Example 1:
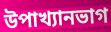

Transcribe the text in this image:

উপাখ্যানভাগ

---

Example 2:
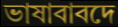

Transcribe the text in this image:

ভাষাবাবদে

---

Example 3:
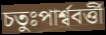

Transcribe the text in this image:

চতুঃপার্শ্ববর্ত্তী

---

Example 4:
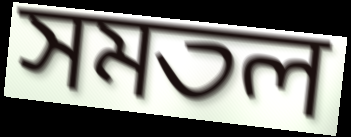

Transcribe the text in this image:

সমতল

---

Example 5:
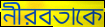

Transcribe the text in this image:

নীরবতাকে